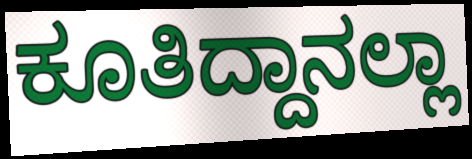
ಕೂತಿದ್ದಾನಲ್ಲಾ